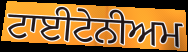
ਟਾਈਟੇਨੀਅਮ